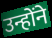
उन्होंने